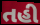
તહી